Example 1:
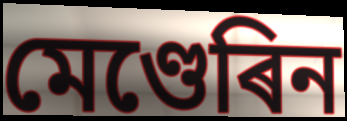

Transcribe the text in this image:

মেণ্ডেৰিন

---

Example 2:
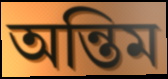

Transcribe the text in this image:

অন্তিম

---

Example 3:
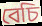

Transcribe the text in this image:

বেচি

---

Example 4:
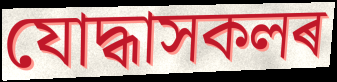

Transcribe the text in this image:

যোদ্ধাসকলৰ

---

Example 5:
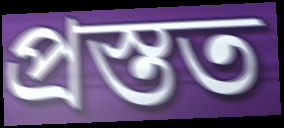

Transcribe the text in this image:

প্ৰস্তত